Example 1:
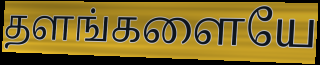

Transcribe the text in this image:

தளங்களையே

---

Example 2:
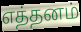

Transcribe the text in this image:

எத்தனம்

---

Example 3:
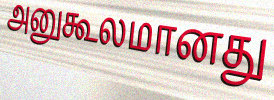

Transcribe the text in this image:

அனுகூலமானது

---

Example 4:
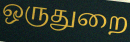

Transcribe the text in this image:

ஒருதுறை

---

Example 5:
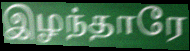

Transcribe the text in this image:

இழந்தாரே